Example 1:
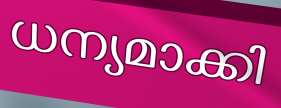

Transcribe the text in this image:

ധന്യമാക്കി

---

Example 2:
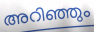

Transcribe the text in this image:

അറിഞ്ഞും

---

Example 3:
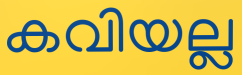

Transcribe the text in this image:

കവിയല്ല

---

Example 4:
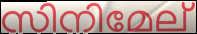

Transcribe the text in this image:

സിനിമേല്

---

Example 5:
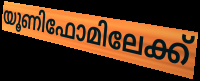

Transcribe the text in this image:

യൂണിഫോമിലേക്ക്